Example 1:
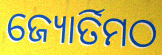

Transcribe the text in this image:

ଜ୍ୟୋର୍ତିମଠ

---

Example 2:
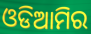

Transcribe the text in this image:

ଓଡିଆମିର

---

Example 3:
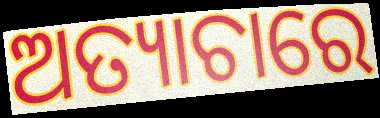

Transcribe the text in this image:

ଅତ୍ୟାଚାରେ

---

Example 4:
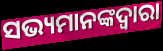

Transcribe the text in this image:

ସଭ୍ୟମାନଙ୍କଦ୍ୱାରା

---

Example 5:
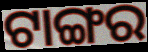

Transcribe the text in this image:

ଟାଙ୍ଗର